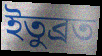
ইতুব্রত